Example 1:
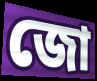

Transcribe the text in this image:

জো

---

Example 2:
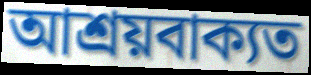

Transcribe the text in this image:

আশ্ৰয়বাক্যত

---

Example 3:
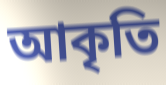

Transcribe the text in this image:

আকৃতি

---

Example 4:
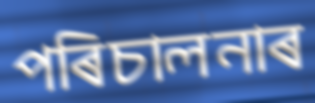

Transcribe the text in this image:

পৰিচালনাৰ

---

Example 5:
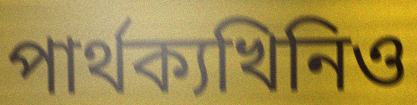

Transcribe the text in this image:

পাৰ্থক্যখিনিও